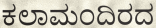
ಕಲಾಮಂದಿರದ